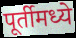
पूर्तीमध्ये